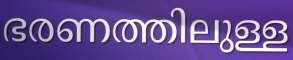
ഭരണത്തിലുള്ള